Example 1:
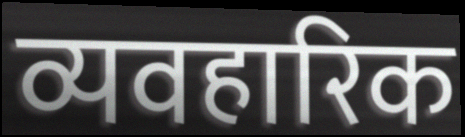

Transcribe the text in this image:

व्यवहारिक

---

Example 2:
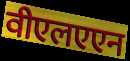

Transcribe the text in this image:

वीएलएएन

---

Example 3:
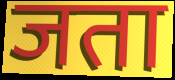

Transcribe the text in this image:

जता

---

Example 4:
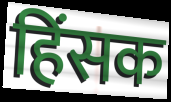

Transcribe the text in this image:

हिंसक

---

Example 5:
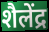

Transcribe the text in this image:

शैलेंद्र